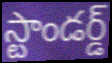
స్టాండర్డ్